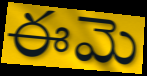
ఈమె